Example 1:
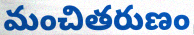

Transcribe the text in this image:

మంచితరుణం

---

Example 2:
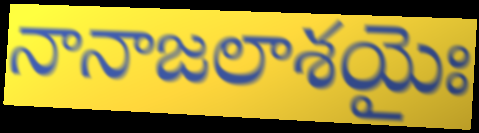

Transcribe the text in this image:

నానాజలాశయైః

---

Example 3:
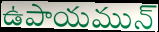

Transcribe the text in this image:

ఉపాయమున్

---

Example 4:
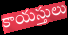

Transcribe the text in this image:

కాయస్తులు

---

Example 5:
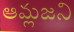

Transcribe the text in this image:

ఆమ్లజని